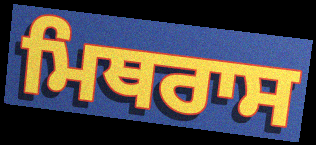
ਮਿਥਰਾਸ